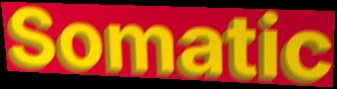
Somatic